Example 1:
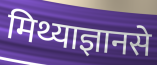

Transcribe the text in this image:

मिथ्याज्ञानसे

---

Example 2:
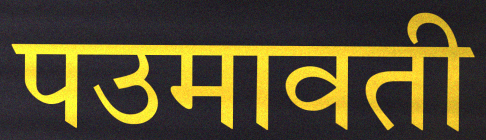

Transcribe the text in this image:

पउमावती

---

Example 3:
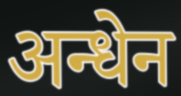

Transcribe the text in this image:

अन्धेन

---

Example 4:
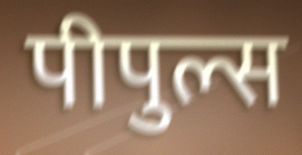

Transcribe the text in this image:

पीपुल्स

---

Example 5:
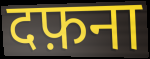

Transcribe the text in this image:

दफ़ना